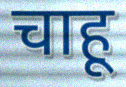
चाहू